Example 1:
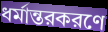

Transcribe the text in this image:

ধর্মান্তরকরণে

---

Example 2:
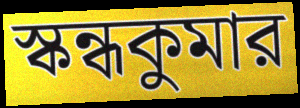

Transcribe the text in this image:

স্কন্ধকুমার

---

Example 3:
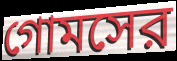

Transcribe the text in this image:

গোমসের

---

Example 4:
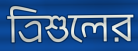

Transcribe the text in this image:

ত্রিশুলের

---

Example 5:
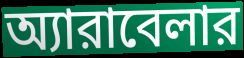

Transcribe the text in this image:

অ্যারাবেলার